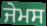
ਜੇਮਸ